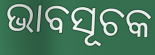
ଭାବସୂଚକ